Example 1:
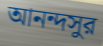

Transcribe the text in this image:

আনন্দসুর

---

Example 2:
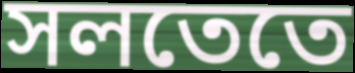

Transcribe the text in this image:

সলতেতে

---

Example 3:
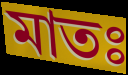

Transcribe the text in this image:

মাতঃ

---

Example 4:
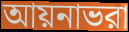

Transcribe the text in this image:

আয়নাভরা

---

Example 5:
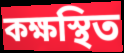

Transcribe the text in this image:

কক্ষস্থিত